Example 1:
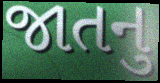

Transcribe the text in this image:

જાતનુ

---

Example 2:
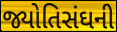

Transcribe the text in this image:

જ્યોતિસંઘની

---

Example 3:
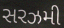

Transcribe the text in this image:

સરઝમી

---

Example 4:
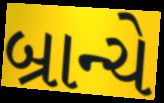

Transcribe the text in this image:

બ્રાન્ચે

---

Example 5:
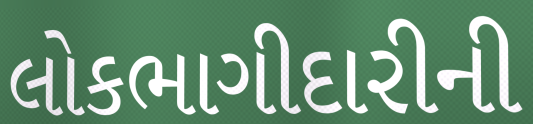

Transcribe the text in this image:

લોકભાગીદારીની